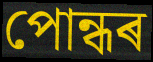
পোন্ধৰ